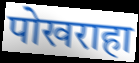
पोखराहा